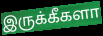
இருக்கீகளா